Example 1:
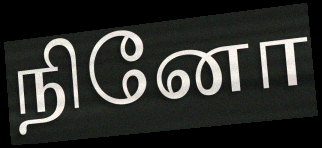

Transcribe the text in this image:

நினோ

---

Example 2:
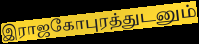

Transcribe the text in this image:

இராஜகோபுரத்துடனும்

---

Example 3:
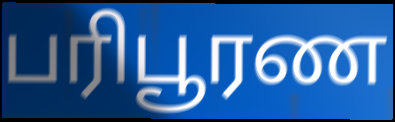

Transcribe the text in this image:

பரிபூரண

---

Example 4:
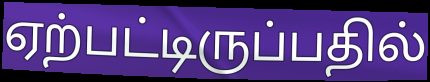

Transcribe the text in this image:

ஏற்பட்டிருப்பதில்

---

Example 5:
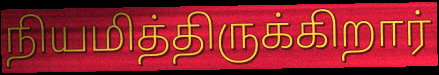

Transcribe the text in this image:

நியமித்திருக்கிறார்